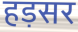
हड़सर